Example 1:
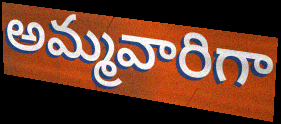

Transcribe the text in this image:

అమ్మవారిగా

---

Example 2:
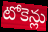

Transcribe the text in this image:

టోకెన్లు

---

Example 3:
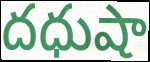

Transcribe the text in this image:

దధుషా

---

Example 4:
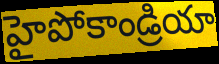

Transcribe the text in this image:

హైపోకాండ్రియా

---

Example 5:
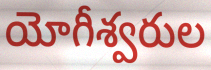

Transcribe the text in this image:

యోగీశ్వరుల